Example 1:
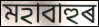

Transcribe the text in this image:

মহাবাহুৰ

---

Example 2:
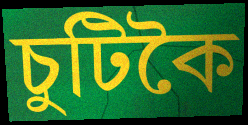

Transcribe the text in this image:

চুটিকৈ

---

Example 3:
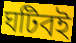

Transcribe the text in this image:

ঘটিবই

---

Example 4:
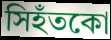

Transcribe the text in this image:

সিহঁতকো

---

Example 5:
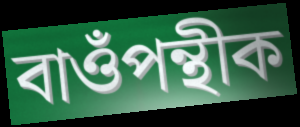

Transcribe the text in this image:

বাওঁপন্থীক